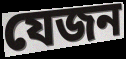
যেজন